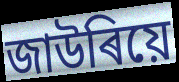
জাউৰিয়ে